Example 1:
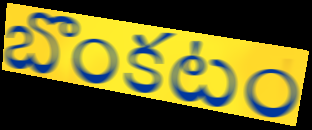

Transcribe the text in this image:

బొంకటం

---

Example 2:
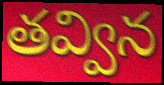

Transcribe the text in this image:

తవ్విన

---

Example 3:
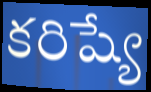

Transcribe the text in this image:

కరిష్యే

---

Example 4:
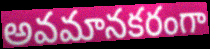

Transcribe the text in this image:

అవమానకరంగా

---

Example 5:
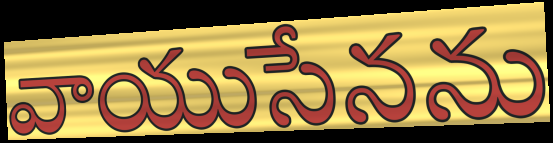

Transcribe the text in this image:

వాయుసేనను